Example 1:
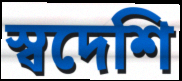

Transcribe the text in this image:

স্বদেশি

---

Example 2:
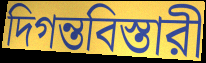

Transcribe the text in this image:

দিগন্তবিস্তারী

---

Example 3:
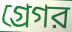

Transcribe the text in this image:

গ্রেগর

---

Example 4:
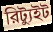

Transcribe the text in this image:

রিট্যুইট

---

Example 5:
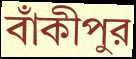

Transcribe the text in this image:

বাঁকীপুর